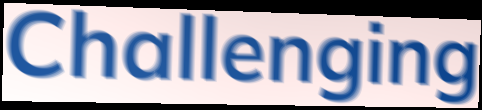
Challenging